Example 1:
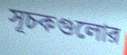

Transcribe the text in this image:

সূচকগুলোর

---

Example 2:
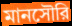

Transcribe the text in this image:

মানসৌরি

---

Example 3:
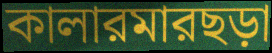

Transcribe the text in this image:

কালারমারছড়া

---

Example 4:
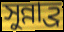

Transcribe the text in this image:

সুন্নাহ্র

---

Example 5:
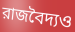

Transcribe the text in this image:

রাজবৈদ্যও